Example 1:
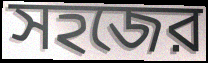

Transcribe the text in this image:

সহজের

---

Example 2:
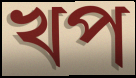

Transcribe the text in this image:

খপ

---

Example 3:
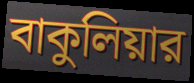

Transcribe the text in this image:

বাকুলিয়ার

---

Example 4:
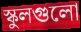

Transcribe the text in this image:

স্কুলগুলো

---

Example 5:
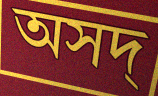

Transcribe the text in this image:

অসদ্